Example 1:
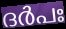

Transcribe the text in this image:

ദർപഃ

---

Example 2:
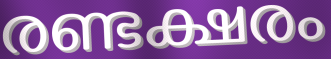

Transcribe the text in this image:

രണ്ടക്ഷരം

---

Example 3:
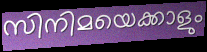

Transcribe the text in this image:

സിനിമയെക്കാളും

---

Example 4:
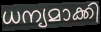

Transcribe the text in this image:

ധന്യമാക്കി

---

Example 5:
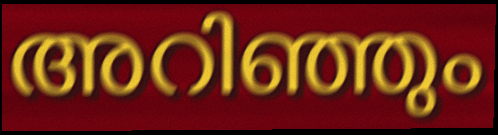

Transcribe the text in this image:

അറിഞ്ഞും